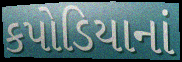
કપોડિયાનાં